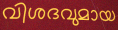
വിശദവുമായ